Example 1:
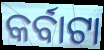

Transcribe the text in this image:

କର୍ବାଟା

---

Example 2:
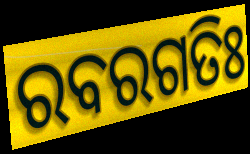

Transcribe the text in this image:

ରବରଗତିଃ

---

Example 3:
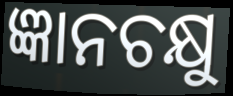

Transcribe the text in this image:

ଜ୍ଞାନଚକ୍ଷୁ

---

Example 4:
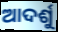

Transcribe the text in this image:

ଆଦର୍ଶୁ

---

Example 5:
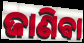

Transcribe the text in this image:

ଜାଣିଵା